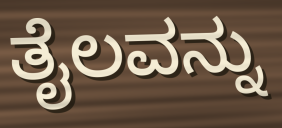
ತೈಲವನ್ನು